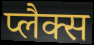
प्लैक्स